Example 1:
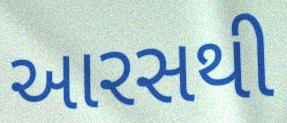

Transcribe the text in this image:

આરસથી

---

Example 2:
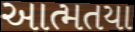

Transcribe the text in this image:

આત્મતયા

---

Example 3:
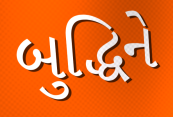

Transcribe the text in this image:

બુદ્ધિને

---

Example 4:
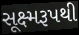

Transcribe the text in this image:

સૂક્ષ્મરૂપથી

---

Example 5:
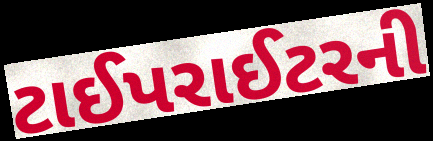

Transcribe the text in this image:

ટાઈપરાઈટરની